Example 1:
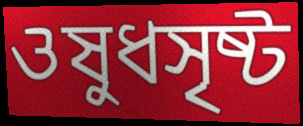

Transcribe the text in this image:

ওষুধসৃষ্ট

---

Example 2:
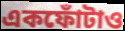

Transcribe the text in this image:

একফোঁটাও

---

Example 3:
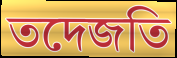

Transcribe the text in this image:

তদেজতি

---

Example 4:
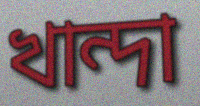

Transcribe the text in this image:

খান্দা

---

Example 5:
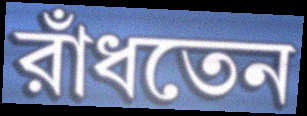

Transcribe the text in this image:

রাঁধতেন